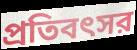
প্রতিবৎসর